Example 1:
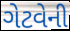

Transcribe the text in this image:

ગેટવેની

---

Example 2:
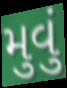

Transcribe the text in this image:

મુવું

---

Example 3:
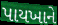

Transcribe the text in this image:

પાયખાને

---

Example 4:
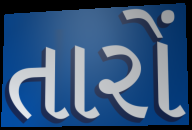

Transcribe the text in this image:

તારોં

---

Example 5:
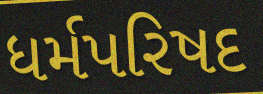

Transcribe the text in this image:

ધર્મપરિષદ